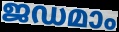
ജഡമാം